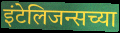
इंटेलिजन्सच्या